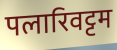
पलारिवट्टम